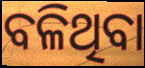
ବଳିଥିବା